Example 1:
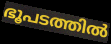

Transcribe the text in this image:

ഭൂപടത്തിൽ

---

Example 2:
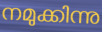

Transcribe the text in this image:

നമുക്കിന്നു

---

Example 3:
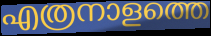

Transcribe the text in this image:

എത്രനാളത്തെ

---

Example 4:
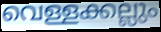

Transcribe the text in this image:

വെള്ളക്കല്ലും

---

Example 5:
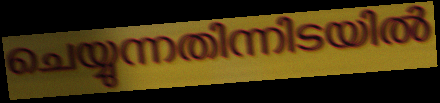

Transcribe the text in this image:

ചെയ്യുന്നതിന്നിടയിൽ